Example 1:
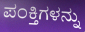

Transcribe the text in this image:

ಪಂಕ್ತಿಗಳನ್ನು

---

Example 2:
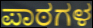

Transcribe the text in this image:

ಪಾಠಗಳ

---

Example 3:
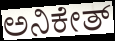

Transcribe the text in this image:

ಅನಿಕೇತ್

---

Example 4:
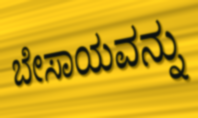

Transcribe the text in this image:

ಬೇಸಾಯವನ್ನು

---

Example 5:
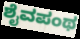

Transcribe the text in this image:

ಶೈವಪಂಥ